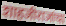
शाहजीराजांचा